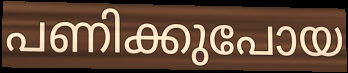
പണിക്കുപോയ